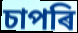
চাপৰি